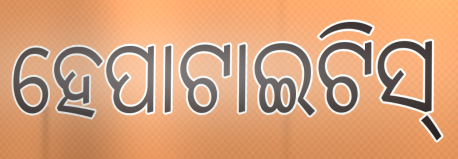
ହେପାଟାଇଟିସ୍